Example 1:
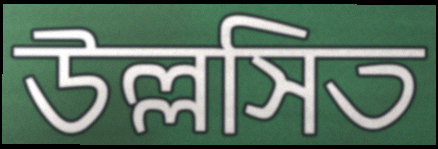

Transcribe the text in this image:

উল্লসিত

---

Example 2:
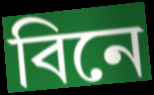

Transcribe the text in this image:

বিনে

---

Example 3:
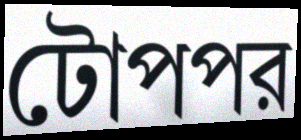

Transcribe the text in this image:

টোপপর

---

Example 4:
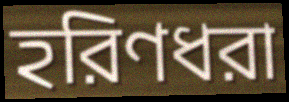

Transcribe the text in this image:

হরিণধরা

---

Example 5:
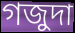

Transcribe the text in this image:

গজুদা